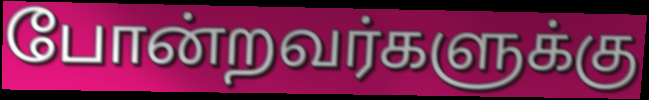
போன்றவர்களுக்கு